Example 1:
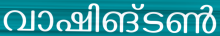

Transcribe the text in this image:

വാഷിങ്ടൺ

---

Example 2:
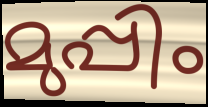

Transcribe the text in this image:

മുപ്പിം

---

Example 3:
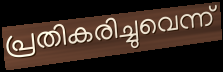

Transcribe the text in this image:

പ്രതികരിച്ചുവെന്ന്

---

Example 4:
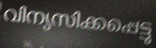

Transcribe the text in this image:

വിന്യസിക്കപ്പെട്ടു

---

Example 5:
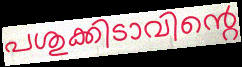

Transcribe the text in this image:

പശുക്കിടാവിന്റെ